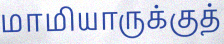
மாமியாருக்குத்